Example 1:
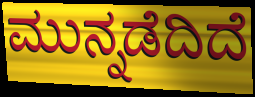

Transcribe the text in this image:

ಮುನ್ನಡೆದಿದೆ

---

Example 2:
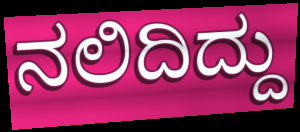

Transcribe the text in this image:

ನಲಿದಿದ್ದು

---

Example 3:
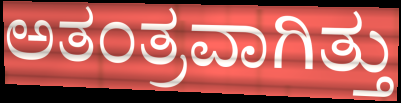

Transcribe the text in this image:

ಅತಂತ್ರವಾಗಿತ್ತು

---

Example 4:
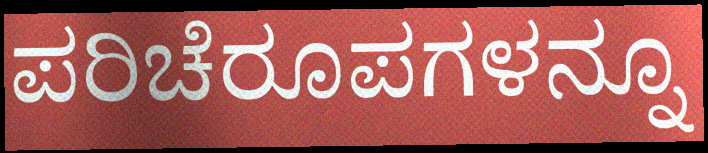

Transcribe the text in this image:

ಪರಿಚೆರೂಪಗಳನ್ನೂ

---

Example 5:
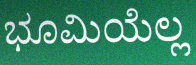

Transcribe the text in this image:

ಭೂಮಿಯೆಲ್ಲ